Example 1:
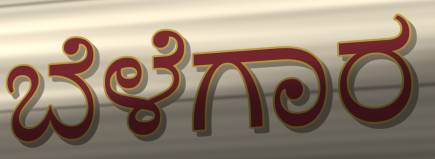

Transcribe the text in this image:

ಬೆಳೆಗಾರ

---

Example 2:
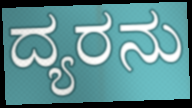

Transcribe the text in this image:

ದ್ಯರನು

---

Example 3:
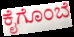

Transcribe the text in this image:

ಕೈಗೊಂಬೆ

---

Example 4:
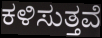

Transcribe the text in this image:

ಕಳಿಸುತ್ತವೆ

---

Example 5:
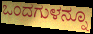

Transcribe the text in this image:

ಒಂದಗುಳನ್ನೂ